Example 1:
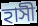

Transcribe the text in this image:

হাসী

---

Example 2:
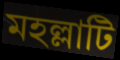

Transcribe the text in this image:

মহল্লাটি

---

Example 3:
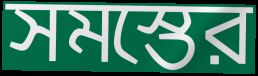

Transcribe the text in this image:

সমস্তের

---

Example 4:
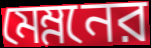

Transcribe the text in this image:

মেম্ননের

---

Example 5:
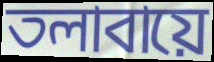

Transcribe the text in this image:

তলাবায়ে